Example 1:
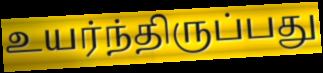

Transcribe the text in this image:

உயர்ந்திருப்பது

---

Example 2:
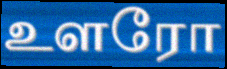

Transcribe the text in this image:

உளரோ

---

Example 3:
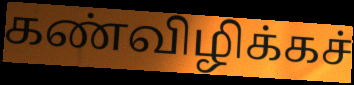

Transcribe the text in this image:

கண்விழிக்கச்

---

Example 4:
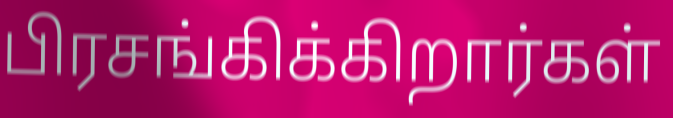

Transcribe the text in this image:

பிரசங்கிக்கிறார்கள்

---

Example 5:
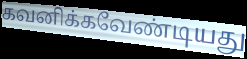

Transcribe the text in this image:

கவனிக்கவேண்டியது